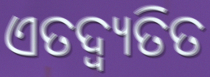
ଏତଦ୍ବ୍ୟତିତ